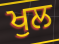
ਖੁਲ